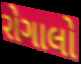
રોગાલો